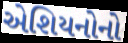
એશિયનોનો